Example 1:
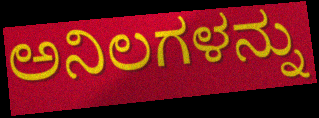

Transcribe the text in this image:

ಅನಿಲಗಳನ್ನು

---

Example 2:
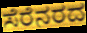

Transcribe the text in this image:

ಸೆರೆನರದ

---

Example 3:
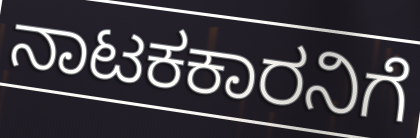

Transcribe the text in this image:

ನಾಟಕಕಾರನಿಗೆ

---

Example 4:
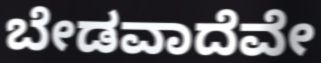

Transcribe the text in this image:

ಬೇಡವಾದೆವೇ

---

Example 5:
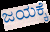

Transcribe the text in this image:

ಜಯಕ್ಕೆ